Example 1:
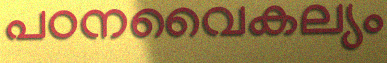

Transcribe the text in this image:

പഠനവൈകല്യം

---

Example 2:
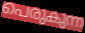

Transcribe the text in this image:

പെരുകുന്ന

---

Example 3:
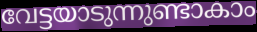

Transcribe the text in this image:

വേട്ടയാടുന്നുണ്ടാകാം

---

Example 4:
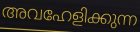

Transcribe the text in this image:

അവഹേളിക്കുന്ന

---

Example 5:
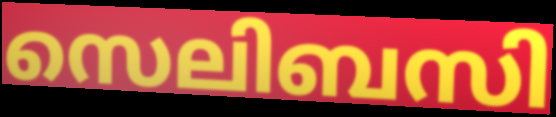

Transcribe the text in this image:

സെലിബസി